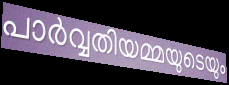
പാർവ്വതിയമ്മയുടെയും